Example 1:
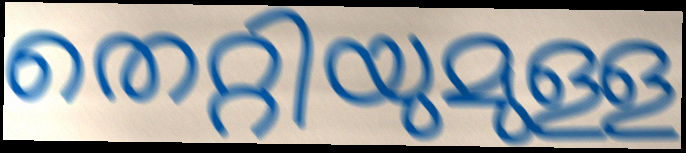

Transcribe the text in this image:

തെറ്റിയുമുള്ള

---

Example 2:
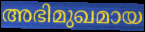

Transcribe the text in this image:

അഭിമുഖമായ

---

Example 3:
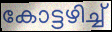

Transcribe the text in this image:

കോട്ടഴിച്ച്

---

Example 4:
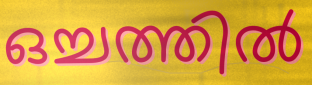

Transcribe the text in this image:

ഒച്ചത്തിൽ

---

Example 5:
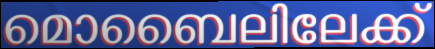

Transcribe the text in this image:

മൊബൈലിലേക്ക്